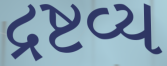
દ્રષ્ટવ્ય